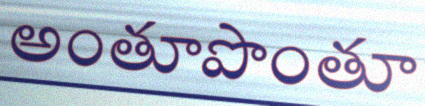
అంతూపొంతూ